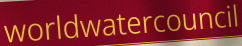
worldwatercouncil